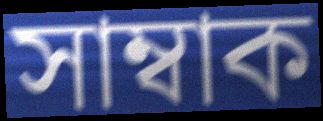
সাম্বাক